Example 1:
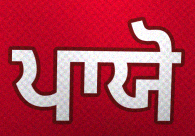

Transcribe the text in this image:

ਪਾਯੋ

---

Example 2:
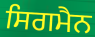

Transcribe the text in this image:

ਸਿਗਮੈਨ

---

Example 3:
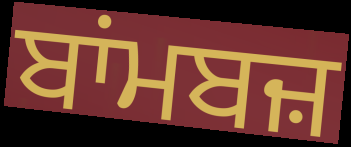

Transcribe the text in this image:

ਬਾਂਮਬਜ਼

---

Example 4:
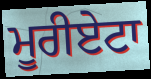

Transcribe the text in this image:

ਮੂਰੀਏਟਾ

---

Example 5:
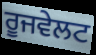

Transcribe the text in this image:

ਰੂਜਵੇਲਟ